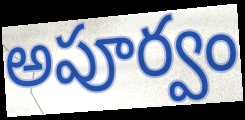
అపూర్వం